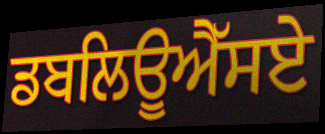
ਡਬਲਿਊਐੱਸਏ